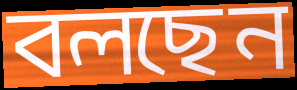
বলছেন